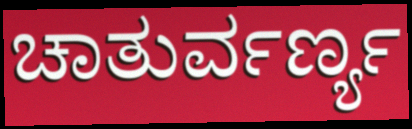
ಚಾತುರ್ವರ್ಣ್ಯ